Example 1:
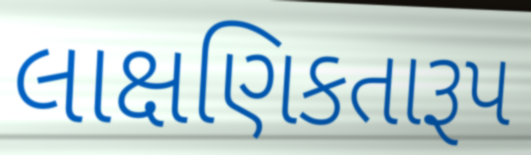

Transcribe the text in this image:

લાક્ષણિકતારૂપ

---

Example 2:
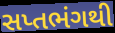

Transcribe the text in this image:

સપ્તભંગથી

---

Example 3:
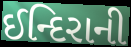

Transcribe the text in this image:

ઈન્દિરાની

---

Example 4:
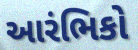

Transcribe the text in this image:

આરંભિકો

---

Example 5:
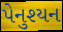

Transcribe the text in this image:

પેનુશ્યન